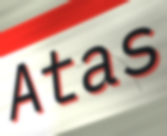
Atas